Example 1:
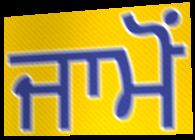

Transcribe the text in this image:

ਜਾਮੋਂ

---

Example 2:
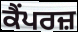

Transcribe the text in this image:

ਕੈਂਪਰਜ਼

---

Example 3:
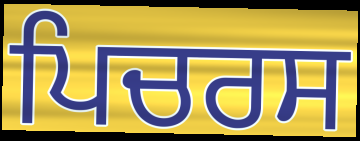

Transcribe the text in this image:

ਪਿਚਰਸ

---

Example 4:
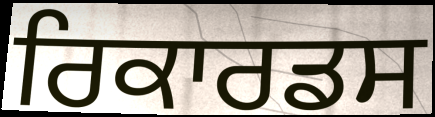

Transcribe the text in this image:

ਰਿਕਾਰਡਸ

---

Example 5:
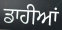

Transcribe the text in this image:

ਡਾਹੀਆਂ